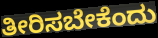
ತೀರಿಸಬೇಕೆಂದು